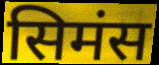
सिमंस